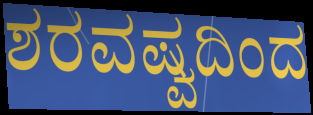
ಶರವಷ್ವದಿಂದ